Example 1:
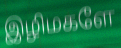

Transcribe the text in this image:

இழிமகளே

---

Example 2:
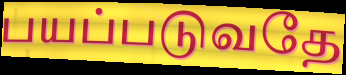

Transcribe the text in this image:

பயப்படுவதே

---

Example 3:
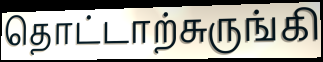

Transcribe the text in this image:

தொட்டாற்சுருங்கி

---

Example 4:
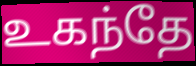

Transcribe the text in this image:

உகந்தே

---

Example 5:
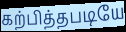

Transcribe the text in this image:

கற்பித்தபடியே